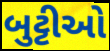
બુટ્ટીઓ